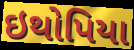
ઇથોપિયા